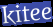
kitee